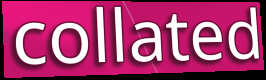
collated